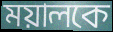
ময়ালকে